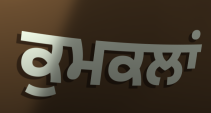
ਕੁਮਕਲਾਂ